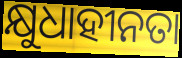
କ୍ଷୁଧାହୀନତା